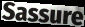
Sassure